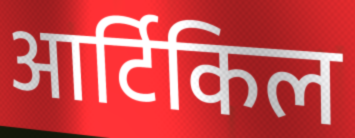
आर्टिकिल